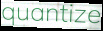
quantize